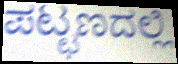
ಪಟ್ಟಣದಲ್ಲಿ